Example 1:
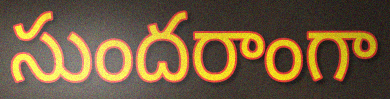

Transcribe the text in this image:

సుందరాంగా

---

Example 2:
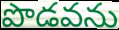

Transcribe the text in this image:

పొడవను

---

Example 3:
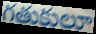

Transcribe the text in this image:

గతుకులూ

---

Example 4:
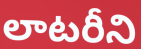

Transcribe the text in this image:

లాటరీని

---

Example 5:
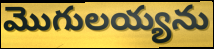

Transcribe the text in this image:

మొగులయ్యను